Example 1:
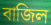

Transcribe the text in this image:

বাজিল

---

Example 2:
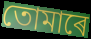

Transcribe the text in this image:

তোমাৰে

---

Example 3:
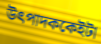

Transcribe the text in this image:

উৎপাদককেইটা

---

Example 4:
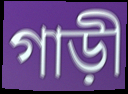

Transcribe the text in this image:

গাড়ী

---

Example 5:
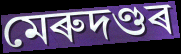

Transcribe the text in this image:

মেৰুদণ্ডৰ